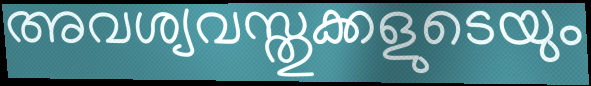
അവശ്യവസ്തുക്കളുടെയും